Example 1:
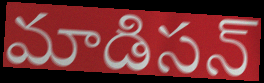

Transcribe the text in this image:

మాడిసన్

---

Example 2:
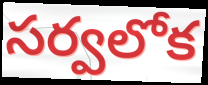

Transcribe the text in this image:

సర్వలోక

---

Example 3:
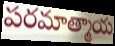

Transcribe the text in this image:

పరమాత్మాయ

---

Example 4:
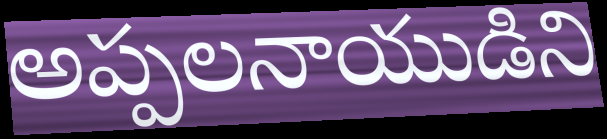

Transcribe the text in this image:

అప్పలనాయుడిని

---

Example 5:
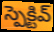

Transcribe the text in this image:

స్పెక్టివ్